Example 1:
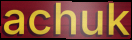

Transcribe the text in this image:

achuk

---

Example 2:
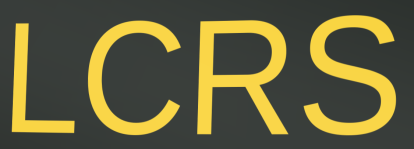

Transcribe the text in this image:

LCRS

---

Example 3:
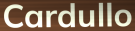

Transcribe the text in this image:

Cardullo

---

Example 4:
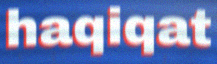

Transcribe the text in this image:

haqiqat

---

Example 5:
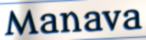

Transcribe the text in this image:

Manava